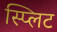
स्प्लिट